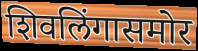
शिवलिंगासमोर